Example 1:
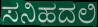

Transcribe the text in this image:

ಸನಿಹದಲಿ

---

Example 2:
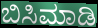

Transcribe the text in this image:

ಬಿಸಿಮಾಡಿ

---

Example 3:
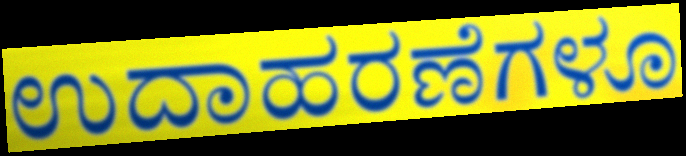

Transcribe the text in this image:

ಉದಾಹರಣೆಗಳೂ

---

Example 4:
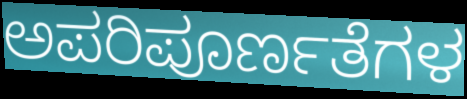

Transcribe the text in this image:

ಅಪರಿಪೂರ್ಣತೆಗಳ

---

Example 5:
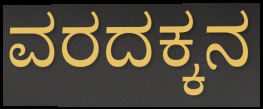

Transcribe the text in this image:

ವರದಕ್ಕನ